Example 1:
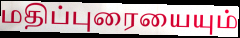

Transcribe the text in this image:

மதிப்புரையையும்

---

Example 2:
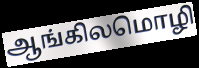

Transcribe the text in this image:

ஆங்கிலமொழி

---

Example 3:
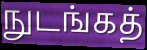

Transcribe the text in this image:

நுடங்கத்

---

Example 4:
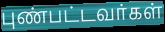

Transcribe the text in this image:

புண்பட்டவர்கள்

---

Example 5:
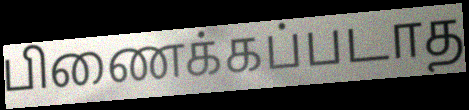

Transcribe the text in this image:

பிணைக்கப்படாத